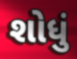
શોધું